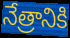
నేత్రానికి